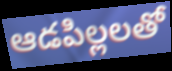
ఆడపిల్లలతో